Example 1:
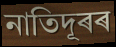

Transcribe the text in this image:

নাতিদূৰৰ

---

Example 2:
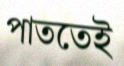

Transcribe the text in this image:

পাততেই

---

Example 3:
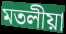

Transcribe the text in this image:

মতলীয়া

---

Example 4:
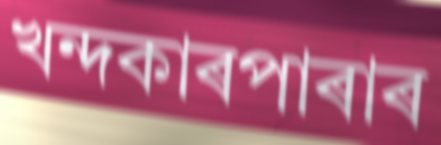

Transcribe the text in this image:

খন্দকাৰপাৰাৰ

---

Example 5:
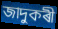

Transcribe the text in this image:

জাদুকৰী